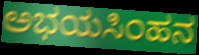
ಅಭಯಸಿಂಹನ